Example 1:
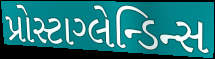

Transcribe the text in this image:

પ્રોસ્ટાગ્લેન્ડિન્સ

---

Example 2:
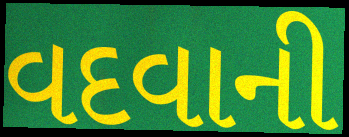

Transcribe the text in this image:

વદવાની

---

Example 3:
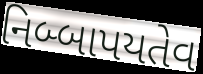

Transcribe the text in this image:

નિબ્બાપયતેવ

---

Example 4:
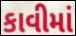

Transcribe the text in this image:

કાવીમાં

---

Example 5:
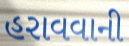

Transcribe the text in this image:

હરાવવાની